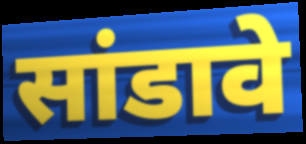
सांडावे